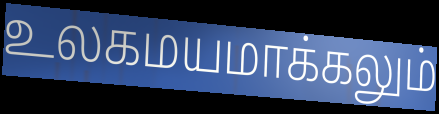
உலகமயமாக்கலும்